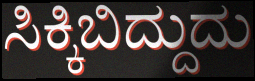
ಸಿಕ್ಕಿಬಿದ್ದುದು